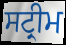
ਸਟ੍ਰੀਮ